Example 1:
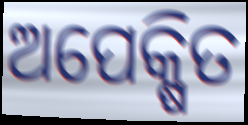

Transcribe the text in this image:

ଅପେକ୍ଷିତ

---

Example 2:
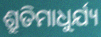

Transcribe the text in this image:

ଶ୍ରୁତିମାଧୁର୍ଯ୍ୟ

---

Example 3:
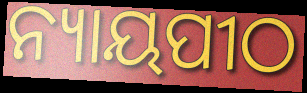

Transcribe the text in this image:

ନ୍ୟାୟପୀଠ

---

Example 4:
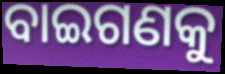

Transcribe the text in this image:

ବାଇଗଣକୁ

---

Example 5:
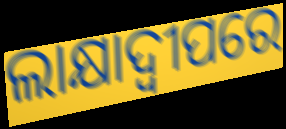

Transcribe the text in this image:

ଲାକ୍ଷାଦ୍ୱୀପରେ